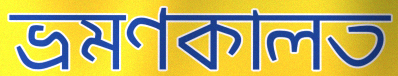
ভ্ৰমণকালত